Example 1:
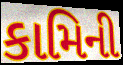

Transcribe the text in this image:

કામિની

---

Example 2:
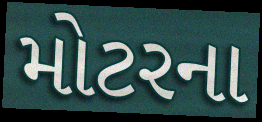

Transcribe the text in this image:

મોટરના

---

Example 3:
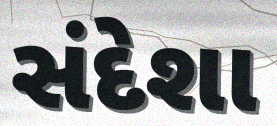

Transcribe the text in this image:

સંદેશા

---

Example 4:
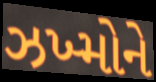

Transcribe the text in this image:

ઝખ્મોને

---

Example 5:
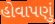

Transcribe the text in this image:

હોવાપણું